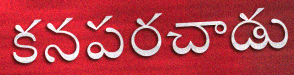
కనపరచాడు